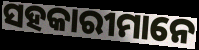
ସହକାରୀମାନେ